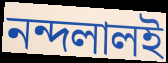
নন্দলালই